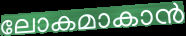
ലോകമാകാൻ